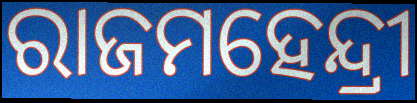
ରାଜମହେନ୍ଦ୍ରୀ